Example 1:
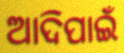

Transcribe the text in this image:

ଆଦିପାଇଁ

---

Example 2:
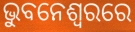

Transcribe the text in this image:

ଭୁବନେଶ୍ୱରରେ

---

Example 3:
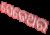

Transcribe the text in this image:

ସେତେଥର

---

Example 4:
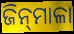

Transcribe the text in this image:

ଜିନ୍‌ମାଳା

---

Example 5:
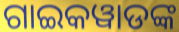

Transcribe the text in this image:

ଗାଇକୱାଡଙ୍କ